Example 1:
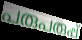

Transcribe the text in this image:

പരുപരുപ്പ്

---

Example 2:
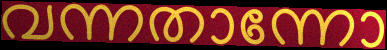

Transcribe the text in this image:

വന്നതാന്നോ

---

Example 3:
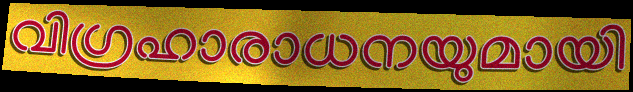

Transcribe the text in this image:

വിഗ്രഹാരാധനയുമായി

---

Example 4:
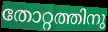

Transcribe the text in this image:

തോറ്റത്തിനു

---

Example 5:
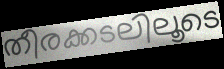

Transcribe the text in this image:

തീരക്കടലിലൂടെ